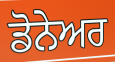
ਡੋਨੇਅਰ